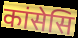
कांसेसि